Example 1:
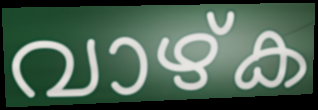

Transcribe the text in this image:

വാഴ്ക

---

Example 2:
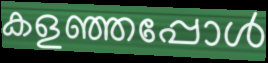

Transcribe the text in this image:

കളഞ്ഞപ്പോൾ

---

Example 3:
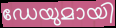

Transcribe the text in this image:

ഡേയുമായി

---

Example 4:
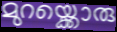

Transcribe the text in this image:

മുറയ്ക്കൊരു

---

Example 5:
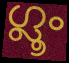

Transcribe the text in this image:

ഗ്ലൂം